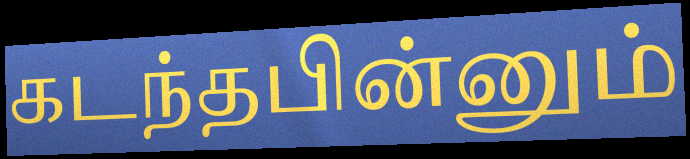
கடந்தபின்னும்